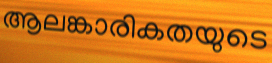
ആലങ്കാരികതയുടെ